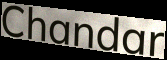
Chandar